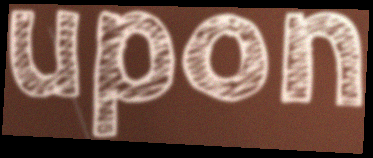
upon